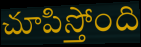
చూపిస్తోంది